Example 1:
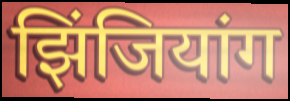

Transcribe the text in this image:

झिंजियांग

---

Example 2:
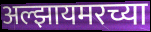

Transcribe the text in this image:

अल्झायमरच्या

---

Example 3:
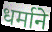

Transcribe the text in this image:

धर्माने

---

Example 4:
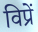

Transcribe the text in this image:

विप्रें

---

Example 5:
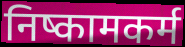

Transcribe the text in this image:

निष्कामकर्म